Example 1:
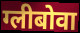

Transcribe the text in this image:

ग्लीबोवा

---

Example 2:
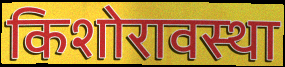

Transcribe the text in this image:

किशोरावस्था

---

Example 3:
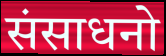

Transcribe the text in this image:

संसाधनो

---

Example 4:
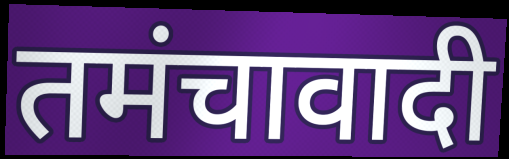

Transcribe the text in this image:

तमंचावादी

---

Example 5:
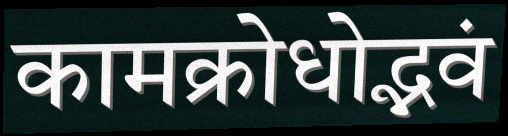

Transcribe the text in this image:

कामक्रोधोद्भवं